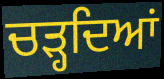
ਚੜ੍ਹਦਿਆਂ